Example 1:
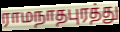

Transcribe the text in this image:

ராமநாதபுரத்து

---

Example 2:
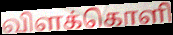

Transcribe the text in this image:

விளக்கொளி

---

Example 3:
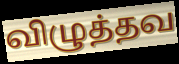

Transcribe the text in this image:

விழுத்தவ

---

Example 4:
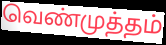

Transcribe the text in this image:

வெண்முத்தம்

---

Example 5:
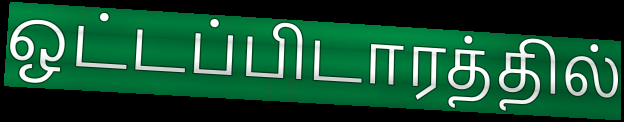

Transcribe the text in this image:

ஒட்டப்பிடாரத்தில்